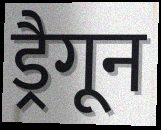
ड्रैगून